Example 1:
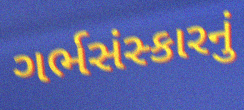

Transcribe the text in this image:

ગર્ભસંસ્કારનું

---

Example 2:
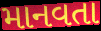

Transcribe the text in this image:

માનવતા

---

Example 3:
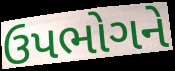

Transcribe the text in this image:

ઉપભોગને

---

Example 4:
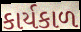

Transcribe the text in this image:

કાર્યકાળ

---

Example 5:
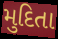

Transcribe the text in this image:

મુદિતા